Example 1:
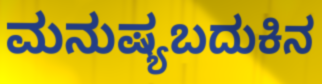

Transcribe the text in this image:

ಮನುಷ್ಯಬದುಕಿನ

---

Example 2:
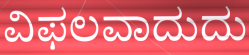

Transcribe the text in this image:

ವಿಫಲವಾದುದು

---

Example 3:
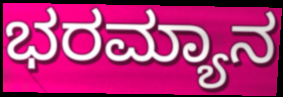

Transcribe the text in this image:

ಭರಮ್ಯಾನ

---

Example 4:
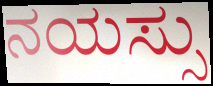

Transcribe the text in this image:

ನಯಸ್ಸು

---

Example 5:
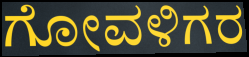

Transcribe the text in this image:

ಗೋವಳಿಗರ